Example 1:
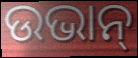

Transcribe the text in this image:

ଉଭାନ୍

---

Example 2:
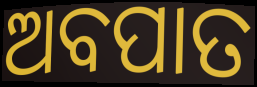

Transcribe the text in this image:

ଅବପାତ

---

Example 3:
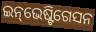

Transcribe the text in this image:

ଇନ୍‌ଭେଷ୍ଟିଗେସନ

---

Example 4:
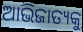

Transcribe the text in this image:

ଆଭିଜାତ୍ୟକୁ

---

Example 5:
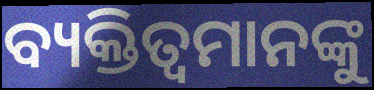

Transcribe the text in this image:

ବ୍ୟକ୍ତିତ୍ବମାନଙ୍କୁ